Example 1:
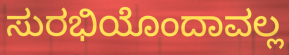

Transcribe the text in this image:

ಸುರಭಿಯೊಂದಾವಲ್ಲ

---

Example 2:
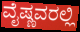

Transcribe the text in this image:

ವೈಷ್ಣವರಲ್ಲಿ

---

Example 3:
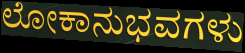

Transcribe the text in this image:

ಲೋಕಾನುಭವಗಳು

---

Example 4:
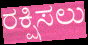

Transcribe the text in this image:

ರಕ್ಷಿಸಲು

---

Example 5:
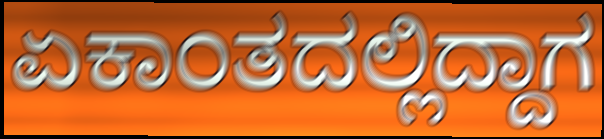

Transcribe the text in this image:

ಏಕಾಂತದಲ್ಲಿದ್ದಾಗ